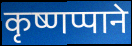
कृष्णप्पाने